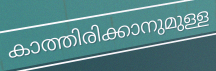
കാത്തിരിക്കാനുമുള്ള